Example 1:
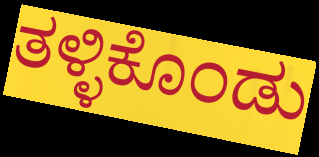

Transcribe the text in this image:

ತಳ್ಳಿಕೊಂಡು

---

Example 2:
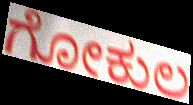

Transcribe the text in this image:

ಗೋಕುಲ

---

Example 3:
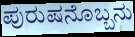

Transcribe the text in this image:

ಪುರುಷನೊಬ್ಬನು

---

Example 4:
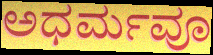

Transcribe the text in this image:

ಅಧರ್ಮವೂ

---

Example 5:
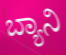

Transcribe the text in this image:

ಬ್ಯಾನಿ